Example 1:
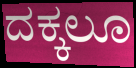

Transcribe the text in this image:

ದಕ್ಕಲೂ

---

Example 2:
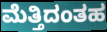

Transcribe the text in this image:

ಮೆತ್ತಿದಂತಹ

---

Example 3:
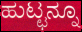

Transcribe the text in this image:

ಹುಟ್ಟನ್ನೂ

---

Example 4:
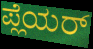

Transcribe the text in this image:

ಪ್ಲೆಯರ್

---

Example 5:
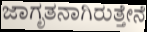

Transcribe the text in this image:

ಜಾಗೃತನಾಗಿರುತ್ತೇನೆ